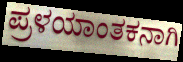
ಪ್ರಳಯಾಂತಕನಾಗಿ